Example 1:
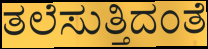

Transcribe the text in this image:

ತಲೆಸುತ್ತಿದಂತೆ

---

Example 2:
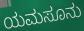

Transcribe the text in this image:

ಯಮಸೂನು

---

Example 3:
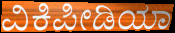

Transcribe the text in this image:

ವಿಕಿಪೀಡಿಯಾ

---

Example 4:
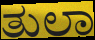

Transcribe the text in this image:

ತುಲಾ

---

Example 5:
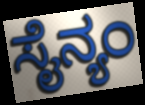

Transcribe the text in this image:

ಸೈನ್ಯಂ